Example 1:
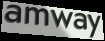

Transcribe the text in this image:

amway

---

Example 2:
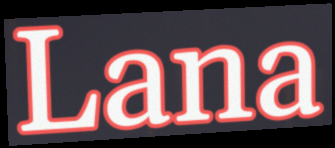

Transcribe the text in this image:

Lana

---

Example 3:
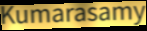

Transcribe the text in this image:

Kumarasamy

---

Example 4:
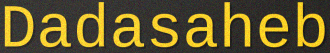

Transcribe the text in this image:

Dadasaheb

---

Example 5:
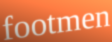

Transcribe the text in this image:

footmen